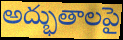
అద్భుతాలపై